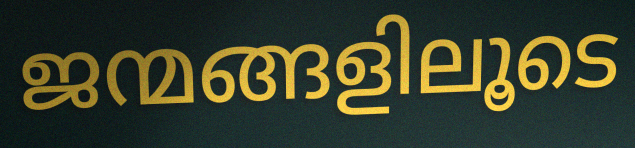
ജന്മങ്ങളിലൂടെ